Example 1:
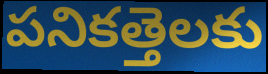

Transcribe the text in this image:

పనికత్తెలకు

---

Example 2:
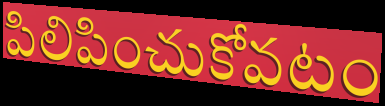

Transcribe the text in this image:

పిలిపించుకోవటం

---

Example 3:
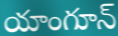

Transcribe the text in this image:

యాంగూన్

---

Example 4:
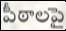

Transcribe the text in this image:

పీఠాలపై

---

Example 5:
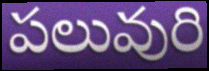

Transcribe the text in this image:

పలువురి